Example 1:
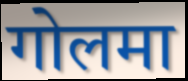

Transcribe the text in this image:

गोलमा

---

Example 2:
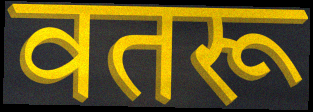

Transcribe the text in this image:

वतरू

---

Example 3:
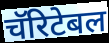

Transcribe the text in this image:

चॅरिटेबल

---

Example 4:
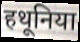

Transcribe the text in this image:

हथूनिया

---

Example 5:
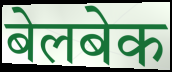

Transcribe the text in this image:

बेलबेक